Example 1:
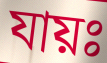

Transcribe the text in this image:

যায়ঃ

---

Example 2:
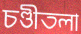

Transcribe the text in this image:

চণ্ডীতলা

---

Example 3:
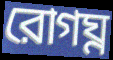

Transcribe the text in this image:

রোগঘ্ন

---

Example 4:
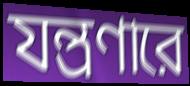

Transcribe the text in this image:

যন্ত্রণারে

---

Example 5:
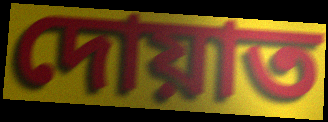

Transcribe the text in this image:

দোয়াত